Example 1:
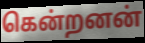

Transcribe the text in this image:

கென்றனன்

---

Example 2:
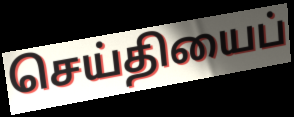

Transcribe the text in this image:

செய்தியைப்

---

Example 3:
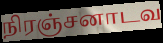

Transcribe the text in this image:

நிரஞ்சனாடவ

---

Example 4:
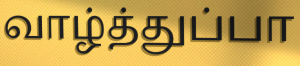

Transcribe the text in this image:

வாழ்த்துப்பா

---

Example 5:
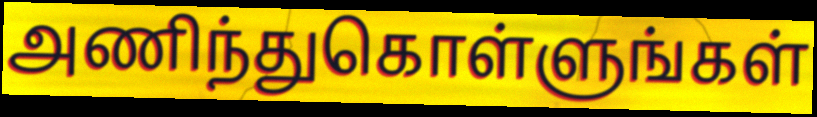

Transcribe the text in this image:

அணிந்துகொள்ளுங்கள்